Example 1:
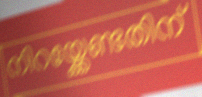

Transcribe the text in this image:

നിറയ്ക്കേണ്ടതിന്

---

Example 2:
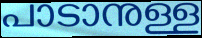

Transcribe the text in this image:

പാടാനുള്ള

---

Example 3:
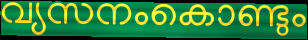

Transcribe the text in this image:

വ്യസനംകൊണ്ടും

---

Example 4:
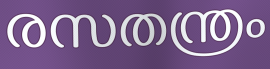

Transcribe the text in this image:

രസതന്ത്രം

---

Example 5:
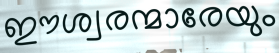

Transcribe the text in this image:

ഈശ്വരന്മാരേയും